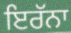
ਇਰੱਨਾ